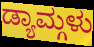
ಡ್ಯಾಮ್ಗಳು